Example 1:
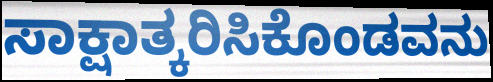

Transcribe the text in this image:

ಸಾಕ್ಷಾತ್ಕರಿಸಿಕೊಂಡವನು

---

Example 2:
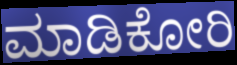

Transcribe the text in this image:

ಮಾಡಿಕೋರಿ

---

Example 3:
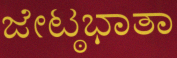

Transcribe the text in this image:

ಜೇಟ್ಠಭಾತಾ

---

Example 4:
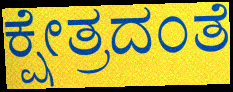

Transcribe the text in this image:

ಕ್ಷೇತ್ರದಂತೆ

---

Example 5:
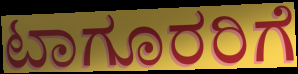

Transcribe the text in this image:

ಟಾಗೂರರಿಗೆ